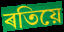
ৰতিয়ে